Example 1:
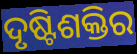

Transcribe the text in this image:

ଦୃଷ୍ଟିଶକ୍ତିର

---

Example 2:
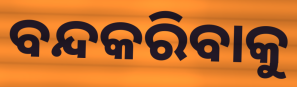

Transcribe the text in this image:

ବନ୍ଦକରିବାକୁ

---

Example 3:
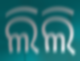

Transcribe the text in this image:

ଲିଲି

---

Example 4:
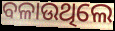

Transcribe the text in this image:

ବଳାଉଥିଲେ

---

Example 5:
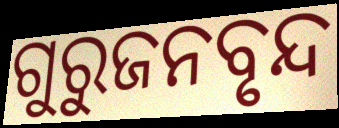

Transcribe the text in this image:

ଗୁରୁଜନବୃନ୍ଦ